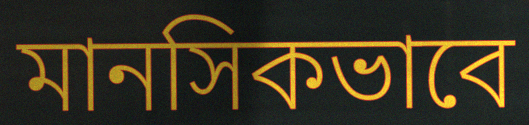
মানসিকভাবে